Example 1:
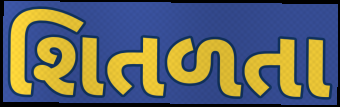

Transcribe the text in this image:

શિતળતા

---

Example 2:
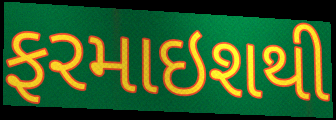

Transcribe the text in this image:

ફરમાઇશથી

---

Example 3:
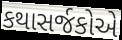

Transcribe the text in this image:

કથાસર્જકોએ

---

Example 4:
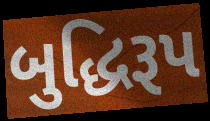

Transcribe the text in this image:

બુદ્ધિરૂપ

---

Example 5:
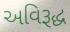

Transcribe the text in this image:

અવિરૂદ્ધ